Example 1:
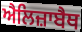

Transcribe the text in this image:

ਐਲਿਜ਼ਾਬੈਥ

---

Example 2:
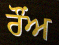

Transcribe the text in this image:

ਰੌਂਅ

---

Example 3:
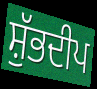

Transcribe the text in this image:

ਸ਼ੁੱਭਦੀਪ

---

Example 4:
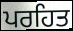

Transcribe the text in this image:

ਪਰਹਿਤ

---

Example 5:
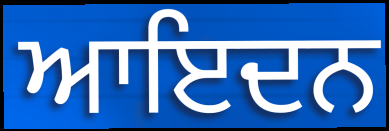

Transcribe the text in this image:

ਆਇਦਨ